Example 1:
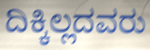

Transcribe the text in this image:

ದಿಕ್ಕಿಲ್ಲದವರು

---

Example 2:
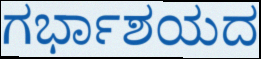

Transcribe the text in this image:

ಗರ್ಭಾಶಯದ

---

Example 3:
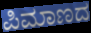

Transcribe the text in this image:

ಪಿಮಾಣದ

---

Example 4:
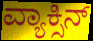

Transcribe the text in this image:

ವ್ಯಾಕ್ಸಿನ್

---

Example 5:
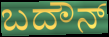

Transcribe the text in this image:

ಬದೌನ್